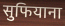
सुफियाना